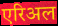
एरिअल